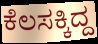
ಕೆಲಸಕ್ಕಿದ್ದ